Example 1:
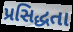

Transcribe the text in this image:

પ્રસિદ્ધતા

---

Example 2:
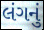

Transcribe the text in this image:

લંગનું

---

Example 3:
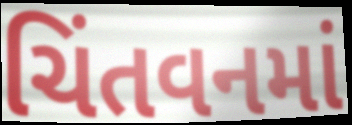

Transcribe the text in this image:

ચિંતવનમાં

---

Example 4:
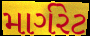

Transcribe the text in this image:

માર્ગરેટ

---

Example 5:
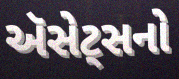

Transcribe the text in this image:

ઍસેટ્સનો